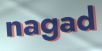
nagad